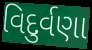
વિદુર્વણા